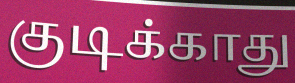
குடிக்காது